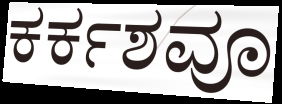
ಕರ್ಕಶವೂ